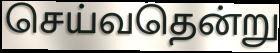
செய்வதென்று